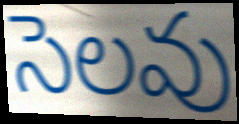
సెలవు